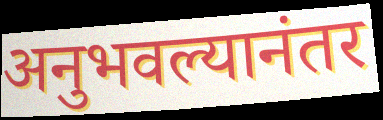
अनुभवल्यानंतर